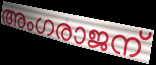
അംഗരാജന്